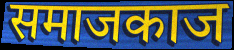
समाजकाज